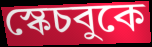
স্কেচবুকে